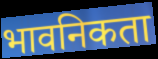
भावनिकता